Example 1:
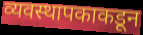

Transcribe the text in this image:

व्यवस्थापकाकडून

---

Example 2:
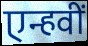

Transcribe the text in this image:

एन्हवीं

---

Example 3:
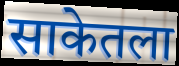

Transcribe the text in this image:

साकेतला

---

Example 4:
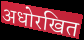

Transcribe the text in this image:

अधोरखित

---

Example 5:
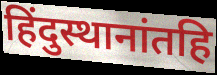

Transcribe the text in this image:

हिंदुस्थानांतहि